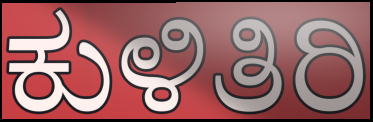
ಕುಳಿತಿರಿ